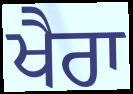
ਖੈਰਾ